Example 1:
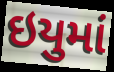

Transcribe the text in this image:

ઇયુમાં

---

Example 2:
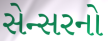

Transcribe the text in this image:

સેન્સરનો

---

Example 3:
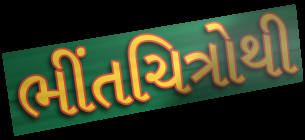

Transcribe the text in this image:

ભીંતચિત્રોથી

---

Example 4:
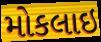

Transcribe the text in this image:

મોકલાઇ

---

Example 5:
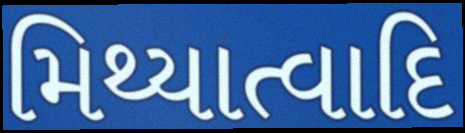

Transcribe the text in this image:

મિથ્યાત્વાદિ